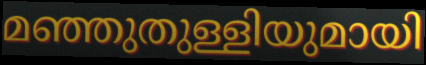
മഞ്ഞുതുള്ളിയുമായി